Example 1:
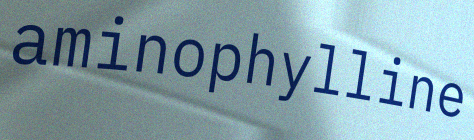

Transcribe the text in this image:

aminophylline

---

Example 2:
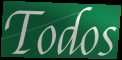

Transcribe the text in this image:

Todos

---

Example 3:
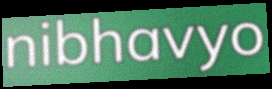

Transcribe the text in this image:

nibhavyo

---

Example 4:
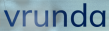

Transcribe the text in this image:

vrunda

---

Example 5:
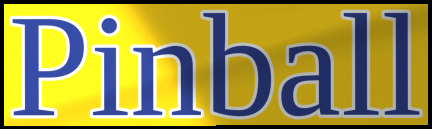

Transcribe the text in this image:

Pinball